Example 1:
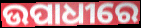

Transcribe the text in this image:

ଉପାଧୀରେ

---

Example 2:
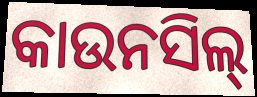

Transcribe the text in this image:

କାଉନସିଲ୍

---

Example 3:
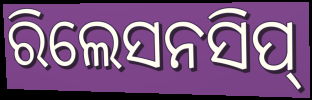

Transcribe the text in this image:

ରିଲେସନସିପ୍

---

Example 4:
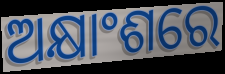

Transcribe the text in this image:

ଅକ୍ଷାଂଶରେ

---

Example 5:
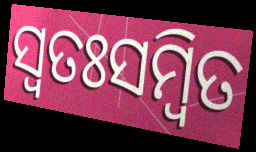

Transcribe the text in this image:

ସ୍ୱତଃସମ୍ବିତ